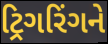
ટ્રિગરિંગને